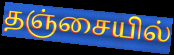
தஞ்சையில்